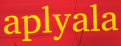
aplyala